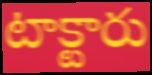
టాక్టారు